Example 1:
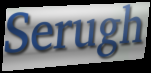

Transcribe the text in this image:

Serugh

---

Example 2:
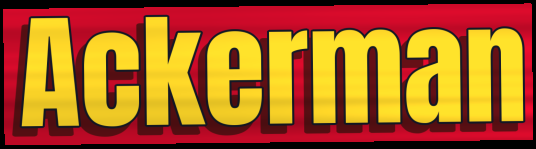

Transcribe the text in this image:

Ackerman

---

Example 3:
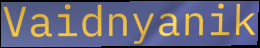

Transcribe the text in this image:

Vaidnyanik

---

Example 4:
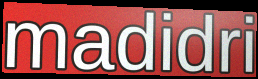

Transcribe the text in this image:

madidri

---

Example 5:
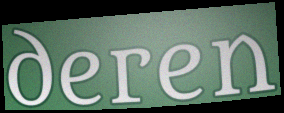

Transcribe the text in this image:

deren